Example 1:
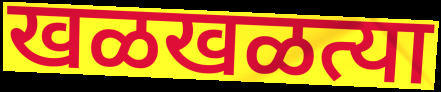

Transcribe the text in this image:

खळखळत्या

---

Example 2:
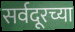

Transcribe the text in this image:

सर्वदूरच्या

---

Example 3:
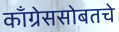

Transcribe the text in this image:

काँग्रेससोबतचे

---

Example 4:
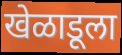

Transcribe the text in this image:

खेळाडूला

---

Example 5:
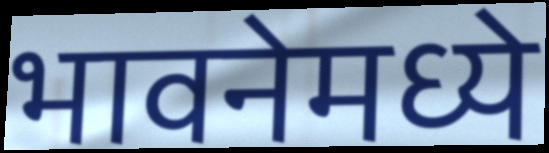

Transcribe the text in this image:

भावनेमध्ये